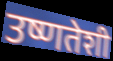
उष्णतेशी